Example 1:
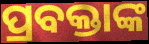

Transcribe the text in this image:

ପ୍ରବକ୍ତାଙ୍କ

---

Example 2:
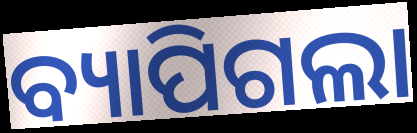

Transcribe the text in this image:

ବ୍ୟାପିଗଲା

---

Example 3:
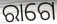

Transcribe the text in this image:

ରାଗେ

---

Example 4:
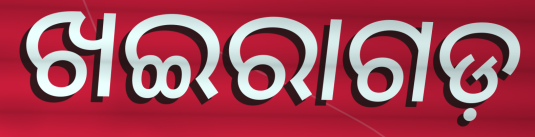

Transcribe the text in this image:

ଖଇରାଗଡ଼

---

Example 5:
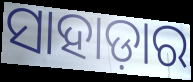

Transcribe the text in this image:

ସାହାଡ଼ାର